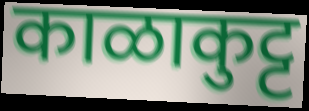
काळाकुट्ट